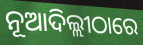
ନୂଆଦିଲ୍ଲୀଠାରେ